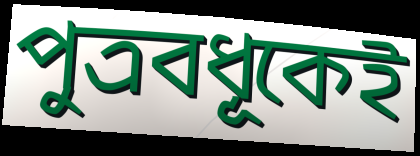
পুত্রবধূকেই